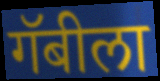
गॅबीला